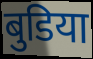
बुडिया